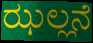
ಝಲ್ಲನೆ